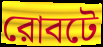
রোবটে